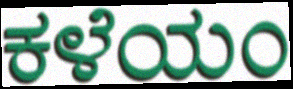
ಕಳೆಯಂ